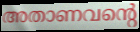
അതാണവന്റെ